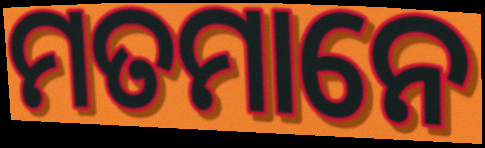
ମତମାନେ